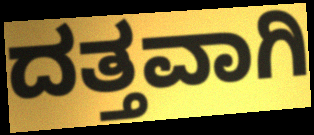
ದತ್ತವಾಗಿ